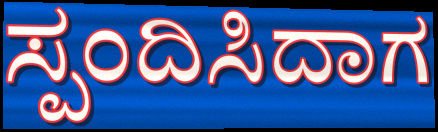
ಸ್ಪಂದಿಸಿದಾಗ